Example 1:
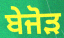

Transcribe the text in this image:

ਬੇਜੋੜ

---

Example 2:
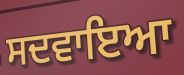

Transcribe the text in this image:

ਸਦਵਾਇਆ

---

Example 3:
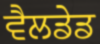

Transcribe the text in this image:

ਵੈਲਡੇਡ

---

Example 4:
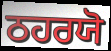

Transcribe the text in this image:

ਠਹਰਯੋ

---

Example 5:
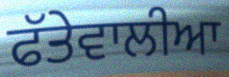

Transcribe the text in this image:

ਫੱਤੇਵਾਲੀਆ